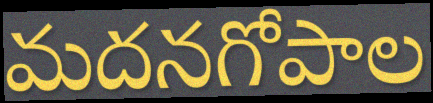
మదనగోపాల